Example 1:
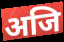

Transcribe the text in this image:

अजि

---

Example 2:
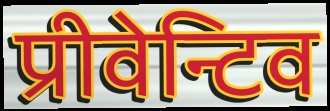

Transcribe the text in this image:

प्रीवेन्टिव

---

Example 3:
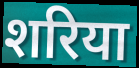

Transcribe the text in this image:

शरिया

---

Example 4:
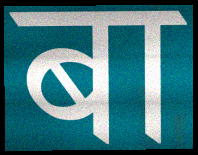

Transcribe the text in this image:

बा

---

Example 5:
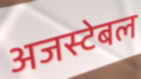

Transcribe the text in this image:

अजस्टेबल